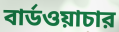
বার্ডওয়াচার